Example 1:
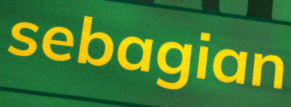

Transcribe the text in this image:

sebagian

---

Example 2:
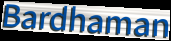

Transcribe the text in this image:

Bardhaman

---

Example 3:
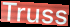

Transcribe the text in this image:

Truss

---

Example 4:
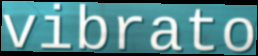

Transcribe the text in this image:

vibrato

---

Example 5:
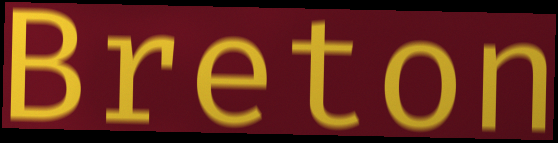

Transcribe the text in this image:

Breton